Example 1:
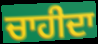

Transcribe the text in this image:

ਚਾਹੀਦਾ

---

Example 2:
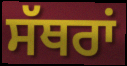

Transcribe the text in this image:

ਸੱਥਰਾਂ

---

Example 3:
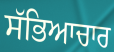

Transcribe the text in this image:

ਸੱਭਿਆਚਾਰ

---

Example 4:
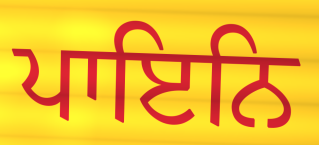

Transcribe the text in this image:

ਪਾਇਨਿ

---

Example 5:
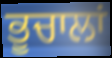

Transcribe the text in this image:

ਭੂਚਾਲਾਂ